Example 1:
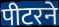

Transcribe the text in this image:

पीटरने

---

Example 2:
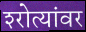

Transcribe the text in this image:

श्रोत्यांवर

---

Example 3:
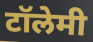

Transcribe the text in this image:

टॉलेमी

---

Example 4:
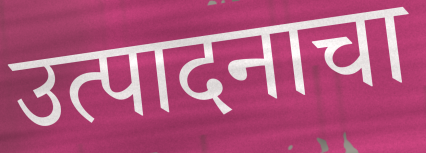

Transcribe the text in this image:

उत्पादनाचा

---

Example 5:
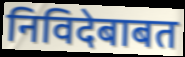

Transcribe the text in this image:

निविदेबाबत